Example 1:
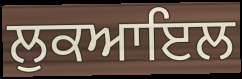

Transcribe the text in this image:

ਲੁਕਆਇਲ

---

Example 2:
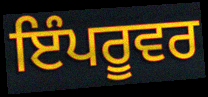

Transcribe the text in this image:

ਇੰਪਰੂਵਰ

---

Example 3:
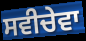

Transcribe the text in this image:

ਸਵੀਚੇਵਾ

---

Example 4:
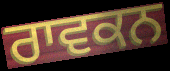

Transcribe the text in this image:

ਰਾਵਕਨ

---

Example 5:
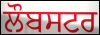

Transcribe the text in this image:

ਲੌਬਸਟਰ